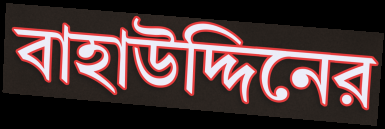
বাহাউদ্দিনের